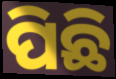
ପିଛି